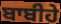
ਬਾਬੀਹੇ